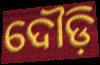
ଦୌଡ଼ି